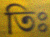
তিঃ